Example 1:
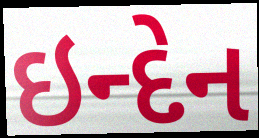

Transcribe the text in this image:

ઇન્દેન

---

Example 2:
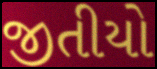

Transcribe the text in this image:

જીતીયો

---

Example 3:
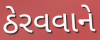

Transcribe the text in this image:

ઠેરવવાને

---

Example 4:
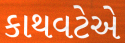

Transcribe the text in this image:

કાથવટેએ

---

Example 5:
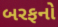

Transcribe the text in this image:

બરફનો